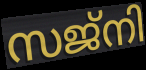
സജ്നി